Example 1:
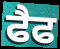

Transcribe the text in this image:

ਫੈਫ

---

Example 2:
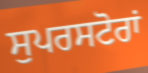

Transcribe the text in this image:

ਸੁਪਰਸਟੋਰਾਂ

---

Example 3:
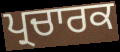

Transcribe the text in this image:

ਪ੍ਰਚਾਰਕ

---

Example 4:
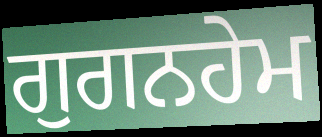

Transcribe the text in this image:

ਗੁਗਨਹੇਮ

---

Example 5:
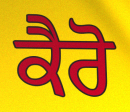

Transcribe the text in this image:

ਕੈਰੋ